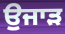
ਉੁਜਾੜ